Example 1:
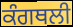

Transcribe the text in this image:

ਕੰਗਥਲੀ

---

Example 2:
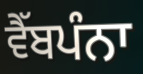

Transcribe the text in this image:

ਵੈੱਬਪੰਨਾ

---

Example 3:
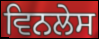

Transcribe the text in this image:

ਵਿਨਲੇਸ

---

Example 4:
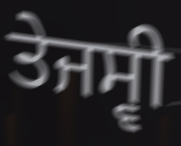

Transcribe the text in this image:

ਤੇਜਸ੍ਵੀ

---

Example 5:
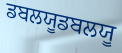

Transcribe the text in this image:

ਡਬਲਯੂਡਬਲਯੂ